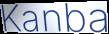
Kanba